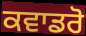
ਕਵਾਡਰੋ